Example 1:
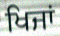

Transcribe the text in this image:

ਖਿਜਾਂ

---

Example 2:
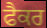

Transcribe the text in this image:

ਫੈਕਰ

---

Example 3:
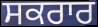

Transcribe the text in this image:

ਸਕਰਾਰ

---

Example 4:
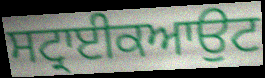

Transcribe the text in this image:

ਸਟ੍ਰਾਈਕਆਉਟ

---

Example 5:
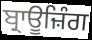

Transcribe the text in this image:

ਬ੍ਰਾਊਜ਼ਿੰਗ